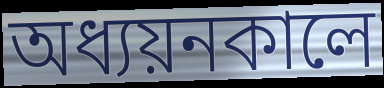
অধ্যয়নকালে